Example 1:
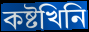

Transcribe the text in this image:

কষ্টখিনি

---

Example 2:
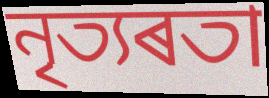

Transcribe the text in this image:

নৃত্যৰতা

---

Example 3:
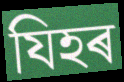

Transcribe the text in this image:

যিহৰ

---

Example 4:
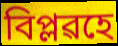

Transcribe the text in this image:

বিপ্লৱহে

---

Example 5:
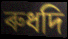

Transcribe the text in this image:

ৰুধদি